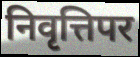
निवृत्तिपर